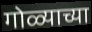
गोळ्याच्या